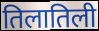
तिलातिली